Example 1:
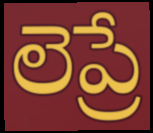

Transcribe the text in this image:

లెప్రే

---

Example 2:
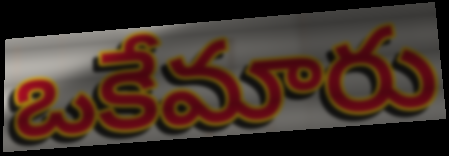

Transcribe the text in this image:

ఒకేమారు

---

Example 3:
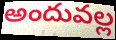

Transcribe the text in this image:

అందువల్ల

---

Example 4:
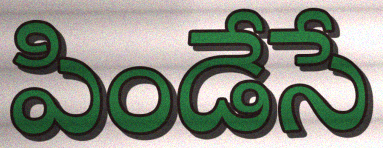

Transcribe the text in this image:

పిండేసే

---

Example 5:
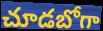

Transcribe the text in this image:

చూడబోగా